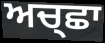
ਅਚ੍ਛਾ